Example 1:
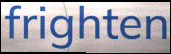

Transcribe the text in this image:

frighten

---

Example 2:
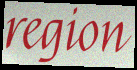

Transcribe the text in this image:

region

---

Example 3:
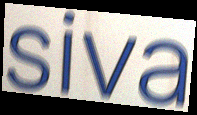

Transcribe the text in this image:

siva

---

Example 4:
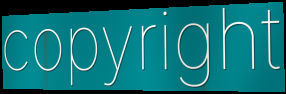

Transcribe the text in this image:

copyright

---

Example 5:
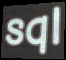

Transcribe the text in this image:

sql